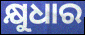
କ୍ଷୁଧାର